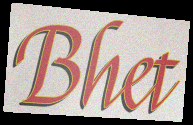
Bhet